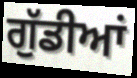
ਗੁੱਡੀਆਂ